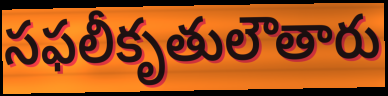
సఫలీకృతులౌతారు